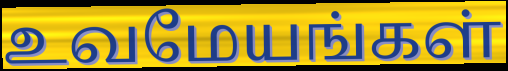
உவமேயங்கள்